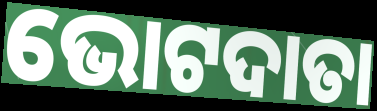
ଭୋଟଦାତା